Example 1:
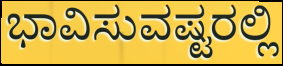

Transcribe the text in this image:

ಭಾವಿಸುವಷ್ಟರಲ್ಲಿ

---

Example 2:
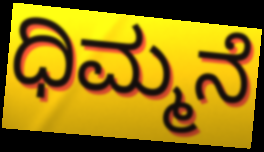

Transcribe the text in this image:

ಧಿಮ್ಮನೆ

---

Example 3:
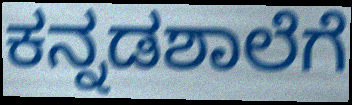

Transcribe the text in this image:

ಕನ್ನಡಶಾಲೆಗೆ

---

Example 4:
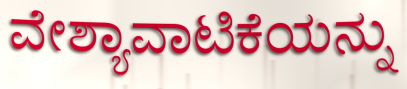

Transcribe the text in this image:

ವೇಶ್ಯಾವಾಟಿಕೆಯನ್ನು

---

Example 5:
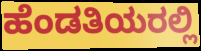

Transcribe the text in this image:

ಹೆಂಡತಿಯರಲ್ಲಿ